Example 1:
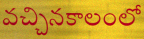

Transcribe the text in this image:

వచ్చినకాలంలో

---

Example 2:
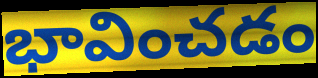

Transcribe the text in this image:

భావించడం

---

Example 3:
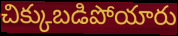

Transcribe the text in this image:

చిక్కుబడిపోయారు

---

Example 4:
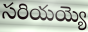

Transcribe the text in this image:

సరియయ్యె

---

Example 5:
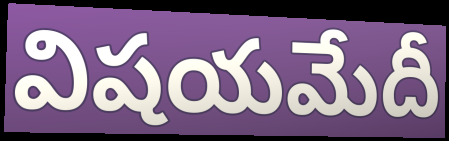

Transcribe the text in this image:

విషయమేదీ